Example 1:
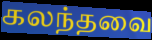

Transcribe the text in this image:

கலந்தவை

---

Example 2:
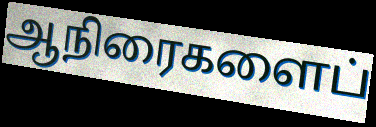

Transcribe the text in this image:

ஆநிரைகளைப்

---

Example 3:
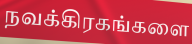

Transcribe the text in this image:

நவக்கிரகங்களை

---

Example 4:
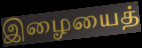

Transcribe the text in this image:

இழையைத்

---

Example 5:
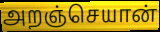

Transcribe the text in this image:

அறஞ்செயான்